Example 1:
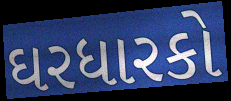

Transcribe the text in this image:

ઘરધારકો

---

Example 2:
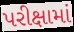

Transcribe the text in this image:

પરીક્ષામાં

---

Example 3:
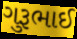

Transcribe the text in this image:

ગુરૂભાઈ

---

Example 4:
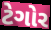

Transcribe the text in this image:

ટેગોર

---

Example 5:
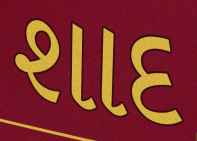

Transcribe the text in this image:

શાદ